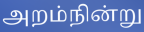
அறம்நின்று